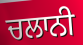
ਚਲਾਨੀ